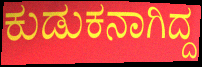
ಕುಡುಕನಾಗಿದ್ದ